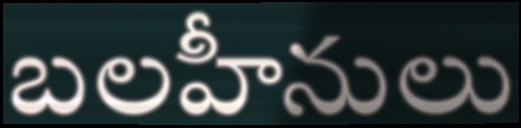
బలహీనులు